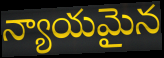
న్యాయమైన